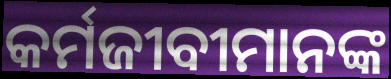
କର୍ମଜୀବୀମାନଙ୍କ